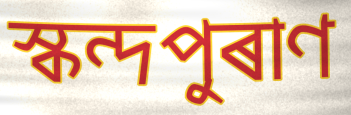
স্কন্দপুৰাণ